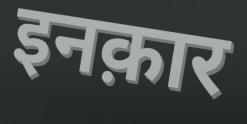
इनक़ार